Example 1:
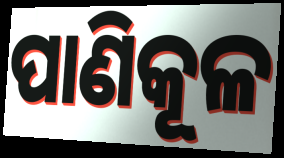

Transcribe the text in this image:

ପାଣିକୂଳ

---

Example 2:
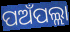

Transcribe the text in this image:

ପଅଁପଲ୍ଲା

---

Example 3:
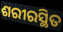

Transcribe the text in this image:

ଶରୀରସ୍ଥିତ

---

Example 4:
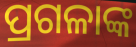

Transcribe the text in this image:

ପ୍ରଗଳାଙ୍କ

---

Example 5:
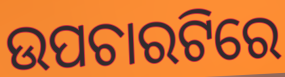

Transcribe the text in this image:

ଉପଚାରଟିରେ